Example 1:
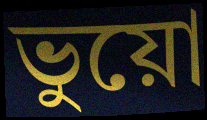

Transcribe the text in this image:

ভুয়ো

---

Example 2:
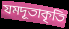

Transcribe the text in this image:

যমদূতাকৃতি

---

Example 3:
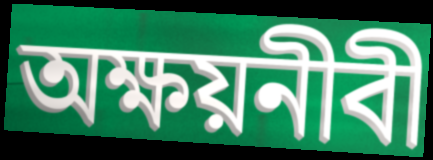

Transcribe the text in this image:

অক্ষয়নীবী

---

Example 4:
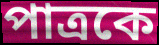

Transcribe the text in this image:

পাত্রকে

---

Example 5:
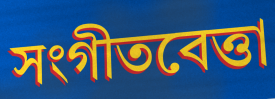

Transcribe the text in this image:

সংগীতবেত্তা